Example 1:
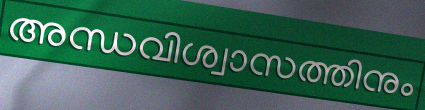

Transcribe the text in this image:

അന്ധവിശ്വാസത്തിനും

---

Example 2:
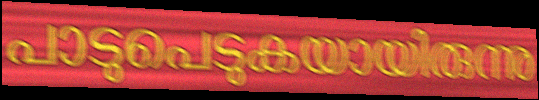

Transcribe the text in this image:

പാടുപെടുകയായിരുന്നു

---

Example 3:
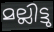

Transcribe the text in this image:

മല്ലിട്ടു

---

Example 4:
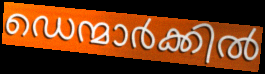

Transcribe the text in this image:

ഡെന്മാർക്കിൽ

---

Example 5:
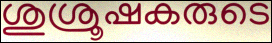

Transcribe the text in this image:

ശുശ്രൂഷകരുടെ